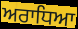
ਅਰਾਧਿਆ